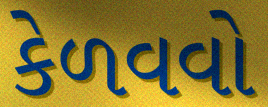
કેળવવો